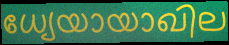
ധ്യേയായാഖില